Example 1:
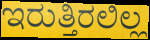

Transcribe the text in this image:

ಇರುತ್ತಿರಲಿಲ್ಲ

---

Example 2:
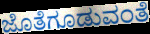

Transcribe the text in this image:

ಜೊತೆಗೂಡುವಂತೆ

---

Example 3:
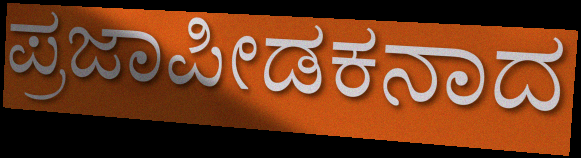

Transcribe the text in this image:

ಪ್ರಜಾಪೀಡಕನಾದ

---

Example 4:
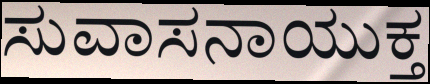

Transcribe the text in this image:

ಸುವಾಸನಾಯುಕ್ತ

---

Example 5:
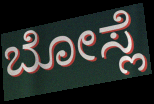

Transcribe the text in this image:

ಬೋಸ್ಲೆ